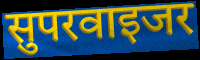
सुपरवाइजर